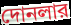
দোনলার